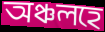
অঞ্চলহে